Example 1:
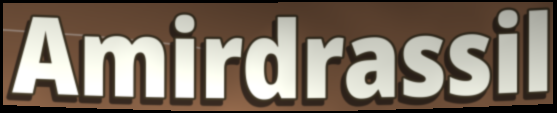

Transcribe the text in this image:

Amirdrassil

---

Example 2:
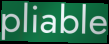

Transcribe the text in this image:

pliable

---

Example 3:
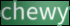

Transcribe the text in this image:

chewy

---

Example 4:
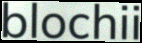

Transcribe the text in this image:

blochii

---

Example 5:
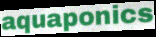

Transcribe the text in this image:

aquaponics